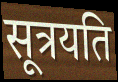
सूत्रयति